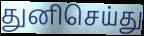
துனிசெய்து